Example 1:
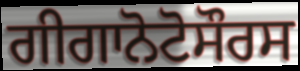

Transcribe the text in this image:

ਗੀਗਾਨੋਟੋਸੌਰਸ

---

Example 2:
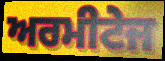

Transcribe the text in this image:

ਅਰਮੀਟੇਜ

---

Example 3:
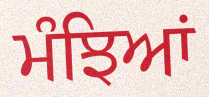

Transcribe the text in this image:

ਮੰਝਿਆਂ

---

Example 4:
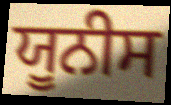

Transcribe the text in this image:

ਯੂਨੀਸ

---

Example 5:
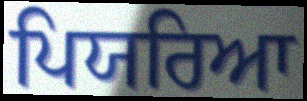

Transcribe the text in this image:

ਪਿਯਰਿਆ